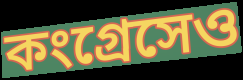
কংগ্রেসেও